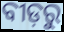
ବୀଡ଼ରୁ